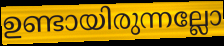
ഉണ്ടായിരുന്നല്ലോ